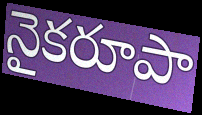
నైకరూపా